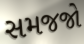
સમજજો